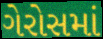
ગેરોસમાં